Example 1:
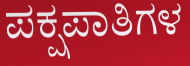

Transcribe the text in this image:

ಪಕ್ಷಪಾತಿಗಳ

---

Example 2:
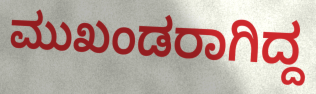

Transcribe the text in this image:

ಮುಖಂಡರಾಗಿದ್ದ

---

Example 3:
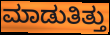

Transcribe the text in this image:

ಮಾಡುತಿತ್ತು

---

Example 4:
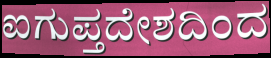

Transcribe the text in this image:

ಐಗುಪ್ತದೇಶದಿಂದ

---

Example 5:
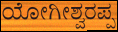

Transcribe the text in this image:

ಯೋಗೀಶ್ವರಪ್ಪ